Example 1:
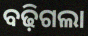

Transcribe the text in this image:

ବଢ଼ିଗଲା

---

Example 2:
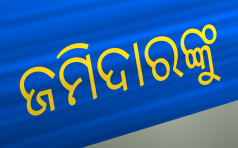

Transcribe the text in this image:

ଜମିଦାରଙ୍କୁ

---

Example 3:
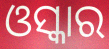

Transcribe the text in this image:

ଓସ୍କାର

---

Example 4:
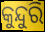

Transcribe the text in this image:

କୁନ୍ଦୁରି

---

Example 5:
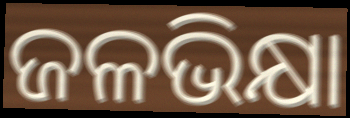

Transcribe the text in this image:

ଜଳଭିକ୍ଷା